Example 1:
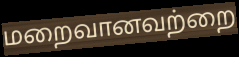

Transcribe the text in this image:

மறைவானவற்றை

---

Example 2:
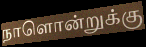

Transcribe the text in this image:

நாளொன்றுக்கு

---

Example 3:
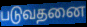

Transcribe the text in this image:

படுவதனை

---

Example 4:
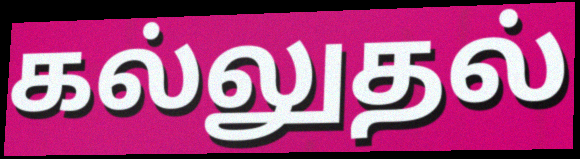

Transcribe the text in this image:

கல்லுதல்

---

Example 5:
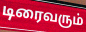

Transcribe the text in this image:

டிரைவரும்